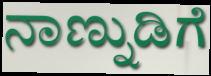
ನಾಣ್ನುಡಿಗೆ